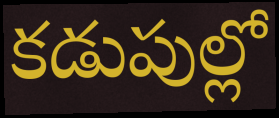
కడుపుల్లో